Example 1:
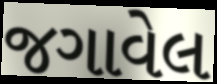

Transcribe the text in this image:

જગાવેલ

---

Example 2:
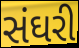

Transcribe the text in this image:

સંઘરી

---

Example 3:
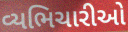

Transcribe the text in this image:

વ્યભિચારીઓ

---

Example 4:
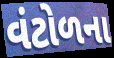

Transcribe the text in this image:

વંટોળના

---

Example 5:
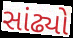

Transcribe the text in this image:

સાંઢ્યો